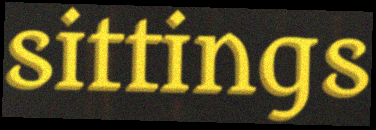
sittings